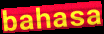
bahasa